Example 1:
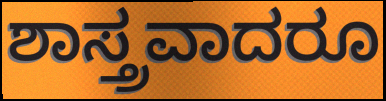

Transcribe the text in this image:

ಶಾಸ್ತ್ರವಾದರೂ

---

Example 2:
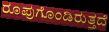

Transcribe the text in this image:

ರೂಪುಗೊಂಡಿರುತ್ತದೆ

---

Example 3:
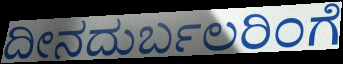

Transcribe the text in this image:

ದೀನದುರ್ಬಲರಿಂಗೆ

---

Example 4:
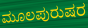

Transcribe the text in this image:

ಮೂಲಪುರುಷರ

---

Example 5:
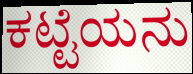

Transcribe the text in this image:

ಕಟ್ಟೆಯನು